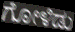
ಗೋಳಿಡು